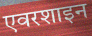
एवरशाइन